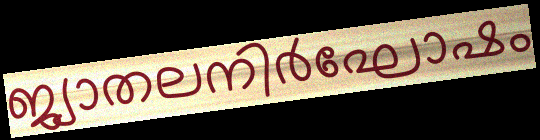
ജ്യാതലനിർഘോഷം